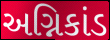
અગ્નિકાંડ